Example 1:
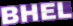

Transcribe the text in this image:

BHEL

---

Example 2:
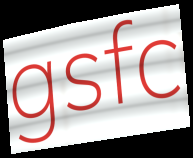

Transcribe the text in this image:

gsfc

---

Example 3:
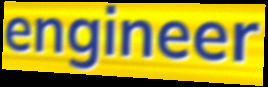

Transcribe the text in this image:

engineer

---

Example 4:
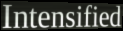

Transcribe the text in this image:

Intensified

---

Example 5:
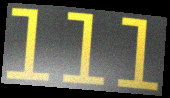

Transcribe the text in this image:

lll